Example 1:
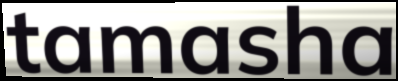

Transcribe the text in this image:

tamasha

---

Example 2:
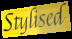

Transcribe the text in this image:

Stylised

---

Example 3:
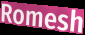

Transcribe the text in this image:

Romesh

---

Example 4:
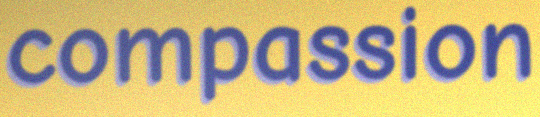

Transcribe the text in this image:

compassion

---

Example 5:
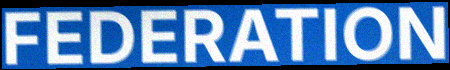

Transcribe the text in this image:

FEDERATION